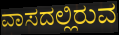
ವಾಸದಲ್ಲಿರುವ